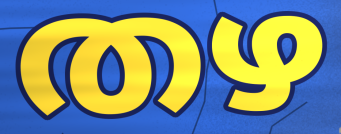
തഴ